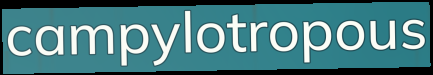
campylotropous